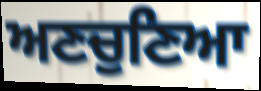
ਅਣਚੁਣਿਆ